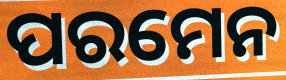
ପରମେନ